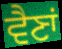
ਵੈਣਾਂ